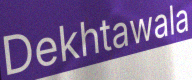
Dekhtawala